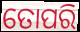
ତୋପରି